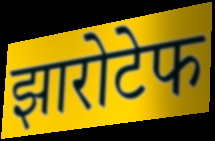
झारोटेफ